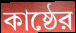
কাষ্ঠের